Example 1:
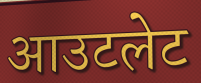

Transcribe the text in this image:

आउटलेट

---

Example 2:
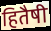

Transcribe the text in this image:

हितैषी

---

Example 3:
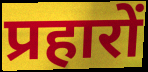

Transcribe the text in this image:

प्रहारों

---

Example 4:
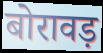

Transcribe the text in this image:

बोरावड़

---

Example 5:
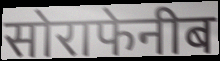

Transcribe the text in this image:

सोराफेनीब